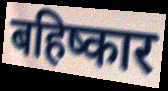
बहिष्कार